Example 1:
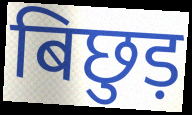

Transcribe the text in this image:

बिछुड़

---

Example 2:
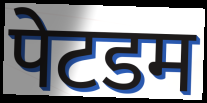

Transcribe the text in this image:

पेटडम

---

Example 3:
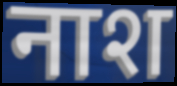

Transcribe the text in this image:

नाश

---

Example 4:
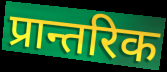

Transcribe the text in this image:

प्रान्तरिक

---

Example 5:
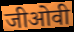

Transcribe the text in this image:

जीओवी